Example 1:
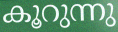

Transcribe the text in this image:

കൂറുന്നു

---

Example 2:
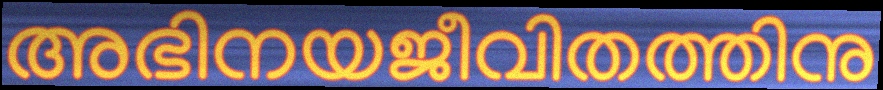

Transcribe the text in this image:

അഭിനയജീവിതത്തിനു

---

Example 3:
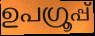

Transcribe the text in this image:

ഉപഗ്രൂപ്പ്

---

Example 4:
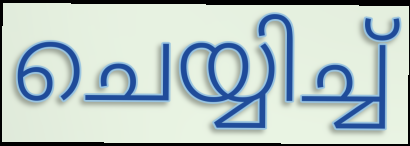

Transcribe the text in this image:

ചെയ്യിച്ച്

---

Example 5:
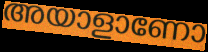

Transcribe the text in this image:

അയാളാണോ